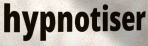
hypnotiser